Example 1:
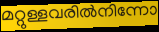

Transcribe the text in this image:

മറ്റുള്ളവരിൽനിന്നോ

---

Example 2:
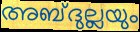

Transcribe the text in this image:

അബ്ദുല്ലയും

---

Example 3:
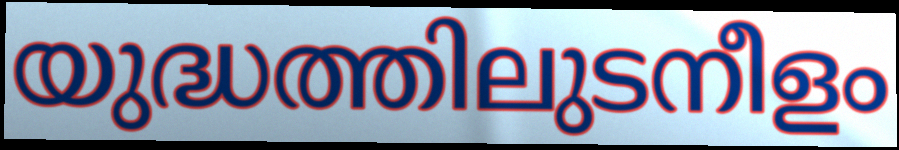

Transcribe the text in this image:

യുദ്ധത്തിലുടനീളം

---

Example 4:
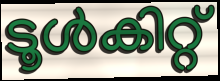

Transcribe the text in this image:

ടൂൾകിറ്റ്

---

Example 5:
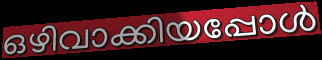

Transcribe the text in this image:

ഒഴിവാക്കിയപ്പോൾ